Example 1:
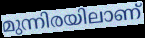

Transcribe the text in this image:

മുന്നിരയിലാണ്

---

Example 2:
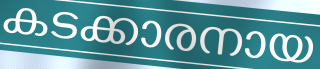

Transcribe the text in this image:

കടക്കാരനായ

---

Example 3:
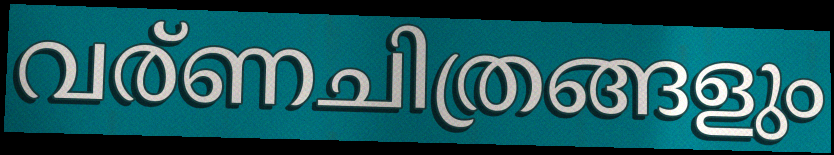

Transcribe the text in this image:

വര്ണചിത്രങ്ങളും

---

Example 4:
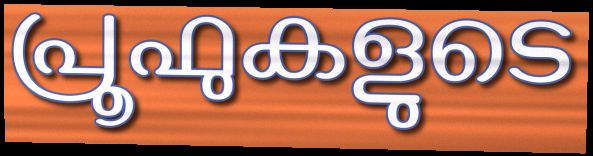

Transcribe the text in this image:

പ്രൂഫുകളുടെ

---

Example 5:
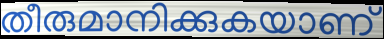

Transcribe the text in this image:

തീരുമാനിക്കുകയാണ്